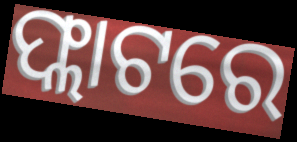
ଫ୍ଲାଟରେ